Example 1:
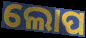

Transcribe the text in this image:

ଲୋପ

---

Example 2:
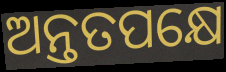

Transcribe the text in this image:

ଅନ୍ତତପକ୍ଷେ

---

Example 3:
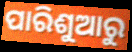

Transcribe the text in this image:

ପାରିଶୁଆରୁ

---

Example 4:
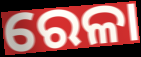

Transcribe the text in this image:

ରେଳା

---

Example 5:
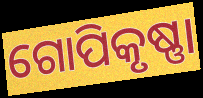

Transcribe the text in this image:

ଗୋପିକୃଷ୍ଣା